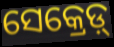
ସେକ୍ରେଡ଼୍